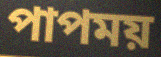
পাপময়